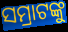
ସମ୍ରାଟଙ୍କୁ